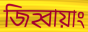
জিহ্বায়াং